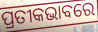
ପ୍ରତୀକଭାବରେ